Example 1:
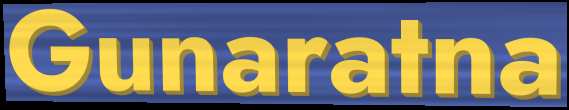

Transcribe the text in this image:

Gunaratna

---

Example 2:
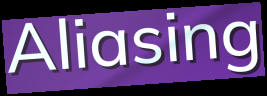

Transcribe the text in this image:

Aliasing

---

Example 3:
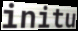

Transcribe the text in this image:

initu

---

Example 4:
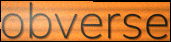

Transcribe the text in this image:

obverse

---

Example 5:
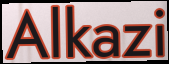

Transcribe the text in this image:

Alkazi